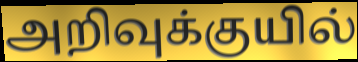
அறிவுக்குயில்